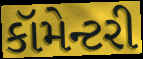
કૉમેન્ટરી